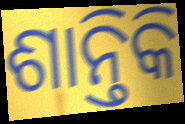
ଶାନ୍ତିକି